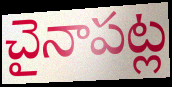
చైనాపట్ల